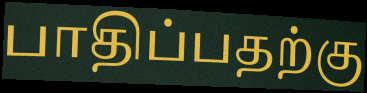
பாதிப்பதற்கு